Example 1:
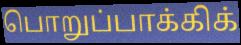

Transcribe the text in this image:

பொறுப்பாக்கிக்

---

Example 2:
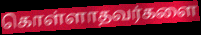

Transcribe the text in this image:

கொள்ளாதவர்களை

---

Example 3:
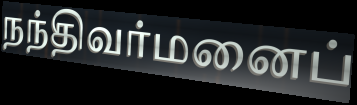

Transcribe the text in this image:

நந்திவர்மனைப்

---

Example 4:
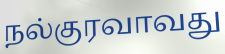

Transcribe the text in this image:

நல்குரவாவது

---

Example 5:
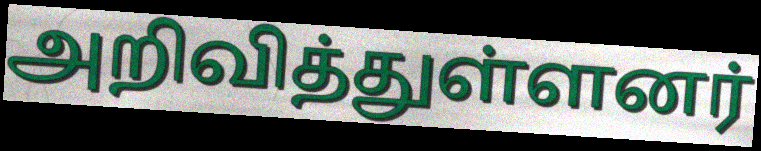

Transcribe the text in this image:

அறிவித்துள்ளனர்